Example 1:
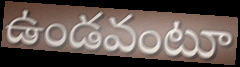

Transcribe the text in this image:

ఉండవంటూ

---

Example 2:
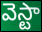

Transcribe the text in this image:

వెస్టా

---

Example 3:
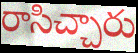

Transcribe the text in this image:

రాసిచ్చారు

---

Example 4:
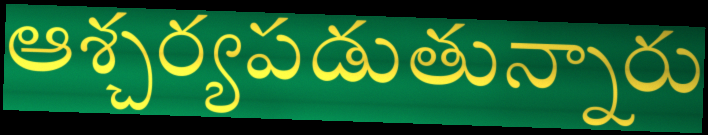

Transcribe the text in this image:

ఆశ్చర్యపడుతున్నారు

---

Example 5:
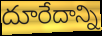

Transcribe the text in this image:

దూరేదాన్ని